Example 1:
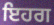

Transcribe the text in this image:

ਇਹਗ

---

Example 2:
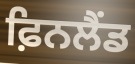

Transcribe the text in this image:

ਫ਼ਿਨਲੈਂਡ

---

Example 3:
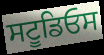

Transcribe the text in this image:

ਸਟੂਡਿਓਸ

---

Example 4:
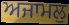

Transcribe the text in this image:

ਅਜਾਮਲੁ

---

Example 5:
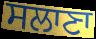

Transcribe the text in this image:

ਸਲਾਣਾ